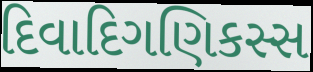
દિવાદિગણિકસ્સ